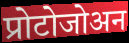
प्रोटोजोअन